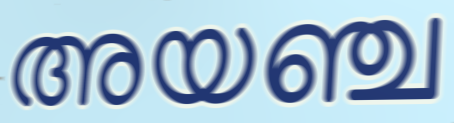
അയഞ്ച